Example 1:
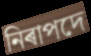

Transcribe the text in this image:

নিৰাপদে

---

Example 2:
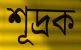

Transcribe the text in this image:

শূদ্ৰক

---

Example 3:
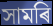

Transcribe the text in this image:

সামৰি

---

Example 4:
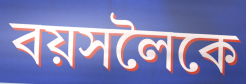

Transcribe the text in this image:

বয়সলৈকে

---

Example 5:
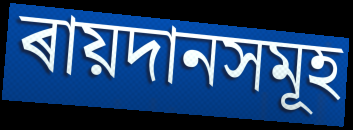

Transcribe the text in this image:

ৰায়দানসমূহ